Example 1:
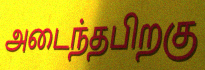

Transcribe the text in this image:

அடைந்தபிறகு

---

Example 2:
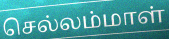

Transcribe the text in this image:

செல்லம்மாள்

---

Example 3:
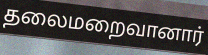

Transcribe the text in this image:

தலைமறைவானார்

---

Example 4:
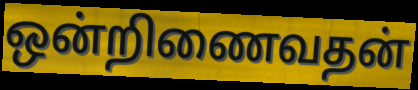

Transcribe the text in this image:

ஒன்றிணைவதன்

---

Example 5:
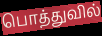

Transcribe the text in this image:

பொத்துவில்